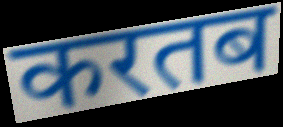
करतब